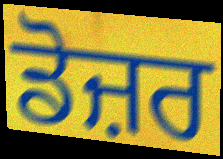
ਡੋਜ਼ਰ